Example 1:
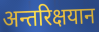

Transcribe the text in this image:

अन्तरिक्षयान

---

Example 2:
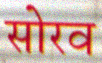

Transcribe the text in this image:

सोरव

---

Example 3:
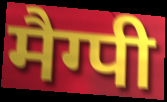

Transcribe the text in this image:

मैग्पी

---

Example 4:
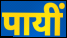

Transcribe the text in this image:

पायीं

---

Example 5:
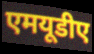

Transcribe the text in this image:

एमयूडीए